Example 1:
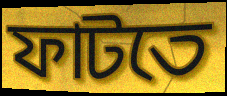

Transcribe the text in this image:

ফাটতে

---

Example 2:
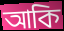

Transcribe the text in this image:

আকি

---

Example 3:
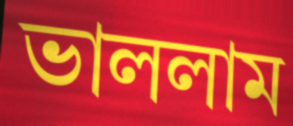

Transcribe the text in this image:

ভাললাম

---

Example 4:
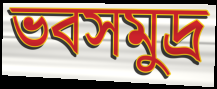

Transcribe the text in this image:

ভবসমুদ্র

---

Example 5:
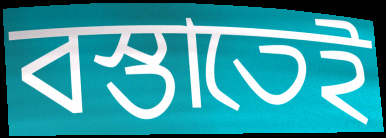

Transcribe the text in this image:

বস্তাতেই